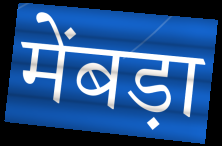
मेंबड़ा